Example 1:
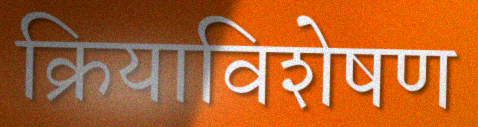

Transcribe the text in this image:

क्रियाविशेषण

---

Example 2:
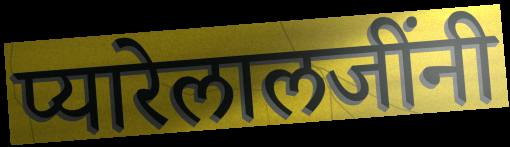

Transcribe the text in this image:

प्यारेलालजींनी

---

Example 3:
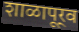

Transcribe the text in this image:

शाळापूर्व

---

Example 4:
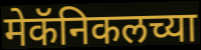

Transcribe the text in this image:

मेकॅनिकलच्या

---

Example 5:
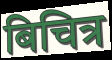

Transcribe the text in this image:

बिचित्र